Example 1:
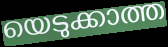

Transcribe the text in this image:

യെടുക്കാത്ത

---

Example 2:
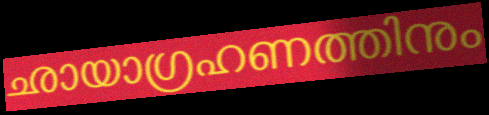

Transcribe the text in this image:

ഛായാഗ്രഹണത്തിനും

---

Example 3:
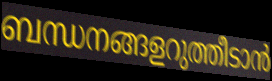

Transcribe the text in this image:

ബന്ധനങ്ങളറുത്തീടാൻ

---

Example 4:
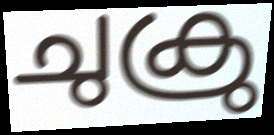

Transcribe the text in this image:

ചുക്രു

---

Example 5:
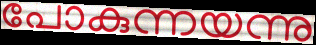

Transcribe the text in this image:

പോകുന്നയന്നു